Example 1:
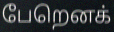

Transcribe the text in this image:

பேறெனக்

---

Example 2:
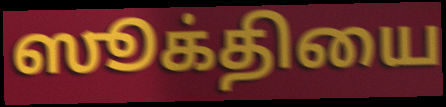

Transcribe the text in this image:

ஸூக்தியை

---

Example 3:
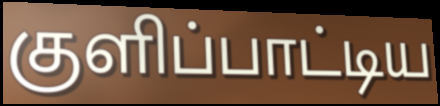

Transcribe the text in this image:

குளிப்பாட்டிய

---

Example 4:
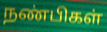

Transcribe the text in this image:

நண்பிகள்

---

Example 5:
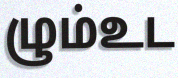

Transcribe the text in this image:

ழும்உட